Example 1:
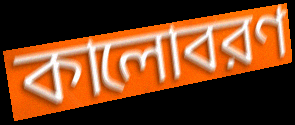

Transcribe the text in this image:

কালোবরণ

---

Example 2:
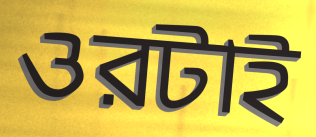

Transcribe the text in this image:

ওরটাই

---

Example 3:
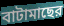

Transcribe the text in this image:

বাটামাছের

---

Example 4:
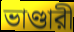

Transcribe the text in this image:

ভাণ্ডারী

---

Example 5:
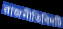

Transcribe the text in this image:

রাজনীতিবিদটি